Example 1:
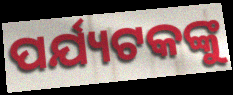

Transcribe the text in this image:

ପର୍ଯ୍ୟଟକଙ୍କୁ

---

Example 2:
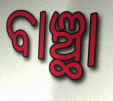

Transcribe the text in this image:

ବାଞ୍ଛା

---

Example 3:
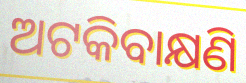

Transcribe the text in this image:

ଅଟକିବାକ୍ଷଣି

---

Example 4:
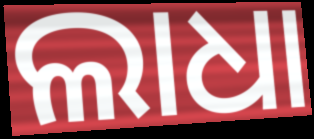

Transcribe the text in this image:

ଲାଧା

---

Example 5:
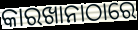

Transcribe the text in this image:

କାରଖାନାଠାରେ